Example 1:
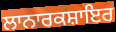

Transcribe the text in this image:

ਲਾਨਾਰਕਸ਼ਾਇਰ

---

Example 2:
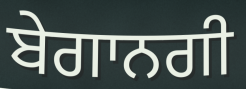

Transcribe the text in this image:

ਬੇਗਾਨਗੀ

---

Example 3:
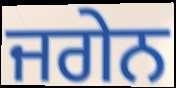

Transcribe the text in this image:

ਜਗੇਨ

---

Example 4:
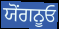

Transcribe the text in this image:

ਯੋਂਗਨੂਓ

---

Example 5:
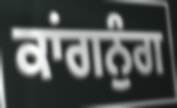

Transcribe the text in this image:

ਕਾਂਗਨੁੰਗ